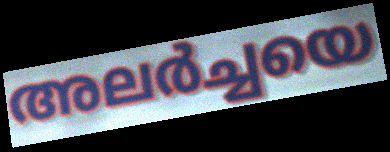
അലർച്ചയെ